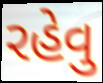
રહેવુ